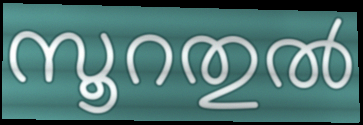
സൂറതുൽ